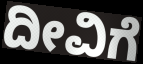
ದೀವಿಗೆ